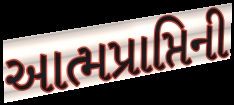
આત્મપ્રાપ્તિની